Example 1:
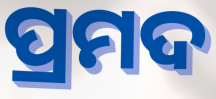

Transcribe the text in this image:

ପ୍ରମଦ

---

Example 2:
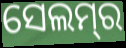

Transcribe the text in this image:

ସେଲମ୍‌ର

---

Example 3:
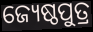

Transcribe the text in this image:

ଜ୍ୟେଷ୍ଠପୁତ୍ର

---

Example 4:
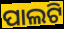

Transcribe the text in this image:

ପାଲଟି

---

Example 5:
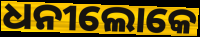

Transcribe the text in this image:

ଧନୀଲୋକେ